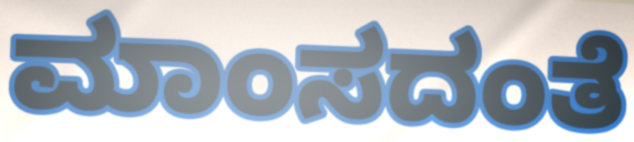
ಮಾಂಸದಂತೆ